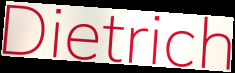
Dietrich